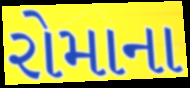
રોમાના